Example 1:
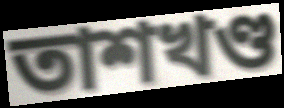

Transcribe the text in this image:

তাশখণ্ড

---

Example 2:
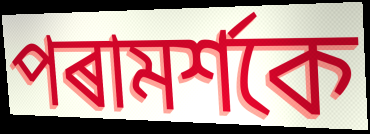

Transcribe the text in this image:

পৰামৰ্শকে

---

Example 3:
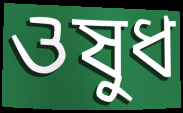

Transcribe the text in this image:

ওষুধ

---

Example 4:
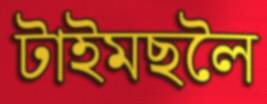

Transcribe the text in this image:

টাইমছলৈ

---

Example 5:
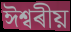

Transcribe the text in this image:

ঈশ্বৰীয়